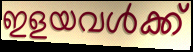
ഇളയവൾക്ക്